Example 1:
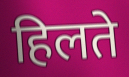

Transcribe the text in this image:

हिलते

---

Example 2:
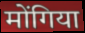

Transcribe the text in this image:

मोंगिया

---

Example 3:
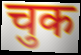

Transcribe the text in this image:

चुक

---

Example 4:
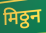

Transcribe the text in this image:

मिठ्ठन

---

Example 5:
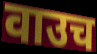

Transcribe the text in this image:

वाउच